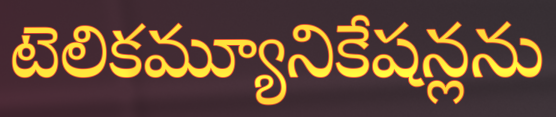
టెలికమ్యూనికేషన్లను